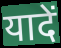
यादें